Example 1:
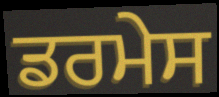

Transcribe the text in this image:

ਡਰਮੇਸ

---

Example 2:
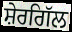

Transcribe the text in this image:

ਸ਼ੇਰਗਿੱਲ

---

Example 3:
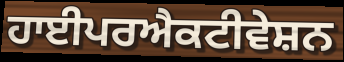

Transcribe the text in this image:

ਹਾਈਪਰਐਕਟੀਵੇਸ਼ਨ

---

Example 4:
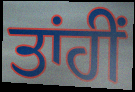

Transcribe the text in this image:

ਤਾਂਹੀਂ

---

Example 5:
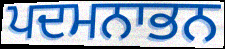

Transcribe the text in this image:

ਪਦਮਨਾਭਨ